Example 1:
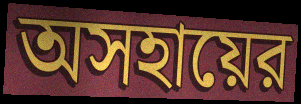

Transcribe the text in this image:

অসহায়ের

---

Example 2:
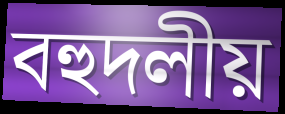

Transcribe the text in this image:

বহুদলীয়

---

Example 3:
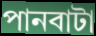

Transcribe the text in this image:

পানবাটা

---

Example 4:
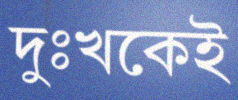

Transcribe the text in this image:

দুঃখকেই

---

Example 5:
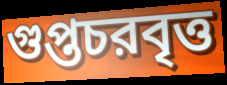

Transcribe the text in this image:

গুপ্তচরবৃত্ত